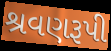
શ્રવણરૂપી